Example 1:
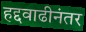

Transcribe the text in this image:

हद्दवाढीनंतर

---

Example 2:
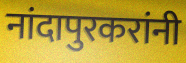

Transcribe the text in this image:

नांदापुरकरांनी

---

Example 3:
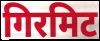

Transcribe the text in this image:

गिरमिट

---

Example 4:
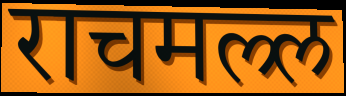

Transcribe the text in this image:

राचमल्ल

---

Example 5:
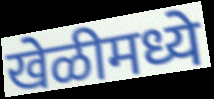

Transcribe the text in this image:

खेळीमध्ये